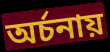
অর্চনায়